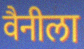
वैनीला